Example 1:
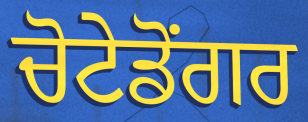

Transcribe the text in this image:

ਚੋਟੇਡੋਂਗਰ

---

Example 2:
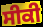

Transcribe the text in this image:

ਸੀਕੀ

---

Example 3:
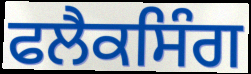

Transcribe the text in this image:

ਫਲੈਕਸਿੰਗ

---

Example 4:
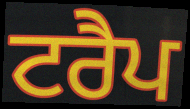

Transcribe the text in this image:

ਟਰੈਪ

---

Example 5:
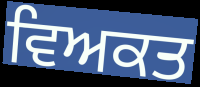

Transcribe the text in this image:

ਵਿਅਕਤ